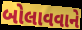
બોલાવવાને